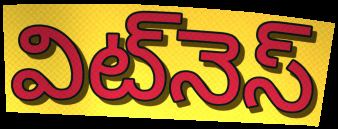
విట్‌నెస్